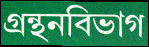
গ্রন্থনবিভাগ